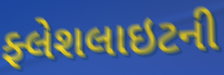
ફ્લેશલાઇટની